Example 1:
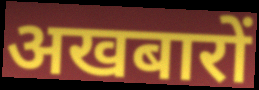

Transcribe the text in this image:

अखबारों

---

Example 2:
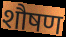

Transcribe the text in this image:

शौषण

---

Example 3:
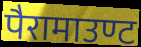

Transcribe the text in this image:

पैरामाउण्ट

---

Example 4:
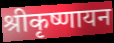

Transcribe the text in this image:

श्रीकृष्णायन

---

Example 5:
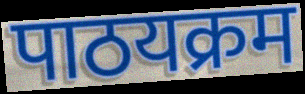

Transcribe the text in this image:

पाठयक्रम